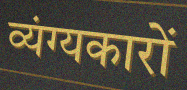
व्‍यंग्‍यकारों